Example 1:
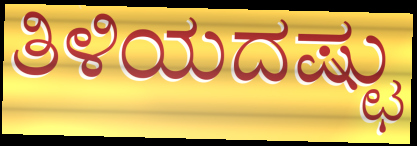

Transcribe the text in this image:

ತಿಳಿಯದಷ್ಟು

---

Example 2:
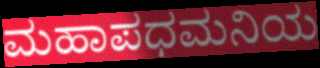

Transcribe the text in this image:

ಮಹಾಪಧಮನಿಯ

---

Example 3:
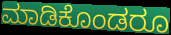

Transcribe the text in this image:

ಮಾಡಿಕೊಂಡರೂ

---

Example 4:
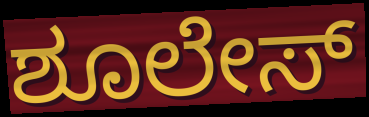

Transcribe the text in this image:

ಶೂಲೇಸ್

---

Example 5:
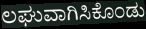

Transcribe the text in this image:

ಲಘುವಾಗಿಸಿಕೊಂಡು